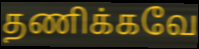
தணிக்கவே